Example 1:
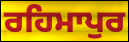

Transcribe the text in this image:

ਰਹਿਮਾਪੁਰ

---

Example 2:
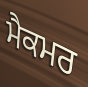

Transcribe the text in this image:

ਮੈਕਮਰ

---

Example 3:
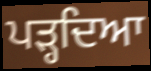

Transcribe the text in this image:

ਪੜ੍ਹਦਿਆ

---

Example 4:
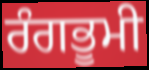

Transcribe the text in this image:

ਰੰਗਭੂਮੀ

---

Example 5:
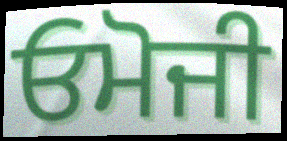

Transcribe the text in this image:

ਓਮੋਜੀ